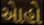
એાહો